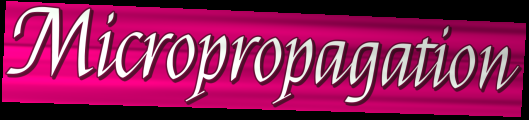
Micropropagation